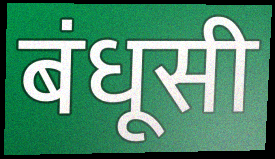
बंधूसी